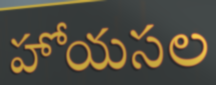
హోయసల